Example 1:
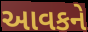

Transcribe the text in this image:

આવકને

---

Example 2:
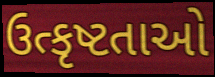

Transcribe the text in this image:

ઉત્કૃષ્ટતાઓ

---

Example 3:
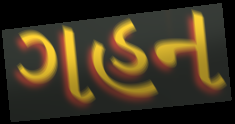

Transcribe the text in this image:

ગહન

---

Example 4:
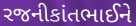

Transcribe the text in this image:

રજનીકાંતભાઈને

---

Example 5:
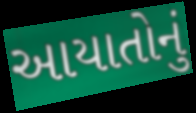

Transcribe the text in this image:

આયાતોનું